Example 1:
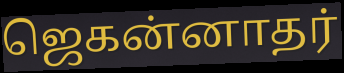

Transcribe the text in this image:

ஜெகன்னாதர்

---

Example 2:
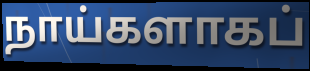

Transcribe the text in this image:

நாய்களாகப்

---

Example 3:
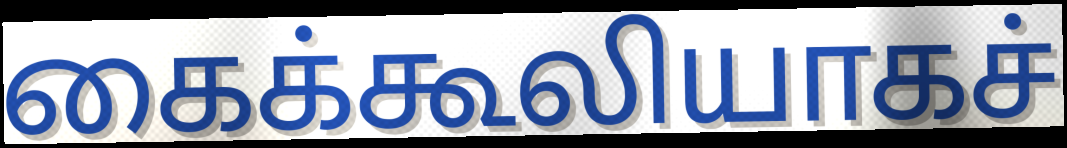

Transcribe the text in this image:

கைக்கூலியாகச்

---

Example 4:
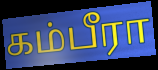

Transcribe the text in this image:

கம்பீரா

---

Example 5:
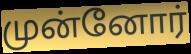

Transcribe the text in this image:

முன்னோர்